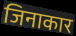
जिनाकार